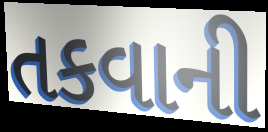
તકવાની